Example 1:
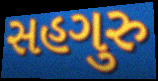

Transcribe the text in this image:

સહગુરુ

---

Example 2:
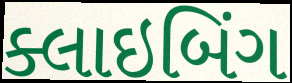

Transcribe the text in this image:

ક્લાઇબિંગ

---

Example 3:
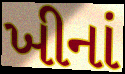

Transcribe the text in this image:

ખીનાં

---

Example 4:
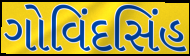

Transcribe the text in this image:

ગોવિંદસિંહ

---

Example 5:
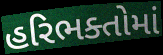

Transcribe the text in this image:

હરિભક્તોમાં